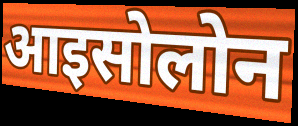
आइसोलोन